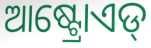
ଆଷ୍ଟ୍ରୋଏଡ୍